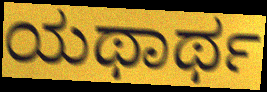
ಯಥಾರ್ಥ